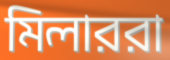
মিলাররা